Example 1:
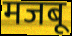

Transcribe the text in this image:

मजबू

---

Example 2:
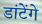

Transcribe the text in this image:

डांटेंगे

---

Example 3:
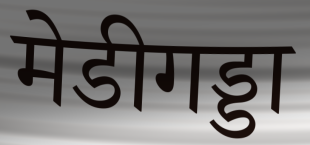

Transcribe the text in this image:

मेडीगड्डा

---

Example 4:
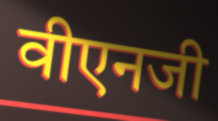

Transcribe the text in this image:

वीएनजी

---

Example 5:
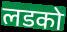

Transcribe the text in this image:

लडको